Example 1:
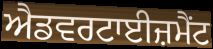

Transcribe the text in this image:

ਐਡਵਰਟਾਈਜ਼ਮੈਂਟ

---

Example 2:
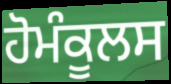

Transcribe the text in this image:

ਹੋਮੰਕੂਲਸ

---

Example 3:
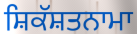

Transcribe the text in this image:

ਸ਼ਿਕੱਸ਼ਤਨਾਮਾ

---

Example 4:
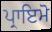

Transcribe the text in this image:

ਪ੍ਰਾਇਮੋ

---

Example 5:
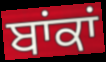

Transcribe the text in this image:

ਬਾਂਕਾਂ